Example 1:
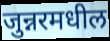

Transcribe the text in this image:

जुन्नरमधील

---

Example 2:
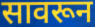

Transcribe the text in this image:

सावरून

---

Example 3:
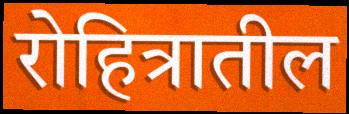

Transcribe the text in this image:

रोहित्रातील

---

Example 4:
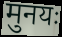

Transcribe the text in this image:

मुनयः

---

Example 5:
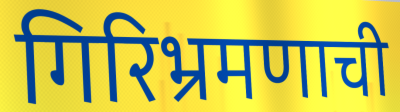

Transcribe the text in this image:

गिरिभ्रमणाची